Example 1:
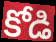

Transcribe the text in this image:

కోడి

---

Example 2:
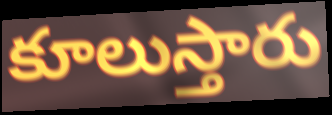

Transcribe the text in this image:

కూలుస్తారు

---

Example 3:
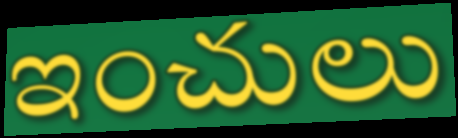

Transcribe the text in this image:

ఇంచులు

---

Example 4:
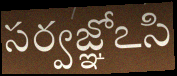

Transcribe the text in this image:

సర్వజ్ఞోఽసి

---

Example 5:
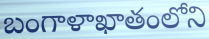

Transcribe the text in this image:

బంగాళాఖాతంలోని